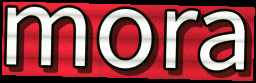
mora